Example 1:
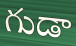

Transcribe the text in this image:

గుడా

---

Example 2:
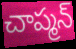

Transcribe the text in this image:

చాప్మన్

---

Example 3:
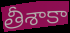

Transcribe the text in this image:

తీశాకా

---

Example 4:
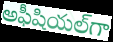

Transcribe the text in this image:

అఫీషియల్‌గా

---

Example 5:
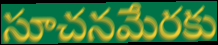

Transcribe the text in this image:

సూచనమేరకు